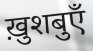
ख़ुशबुएँ